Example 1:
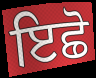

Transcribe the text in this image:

ਇਛੋ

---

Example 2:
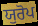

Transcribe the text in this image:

ਯੁਰੋਪ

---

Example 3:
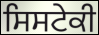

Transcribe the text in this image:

ਸਿਸਟੇਕੀ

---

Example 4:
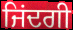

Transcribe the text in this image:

ਜਿਂਦਗੀ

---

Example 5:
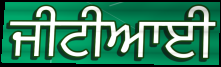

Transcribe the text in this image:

ਜੀਟੀਆਈ